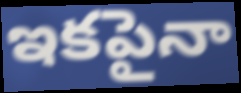
ఇకపైనా